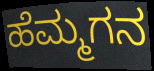
ಹೆಮ್ಮಗನ